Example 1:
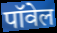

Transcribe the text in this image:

पॉवेल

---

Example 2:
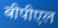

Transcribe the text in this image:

बीपीएल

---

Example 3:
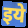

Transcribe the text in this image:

इये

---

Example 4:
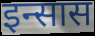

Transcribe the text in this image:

इन्सास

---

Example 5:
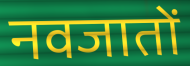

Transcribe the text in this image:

नवजातों